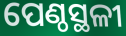
ପେଣ୍ଠସ୍ଥଳୀ